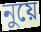
নুয়ে